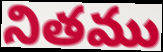
నితము